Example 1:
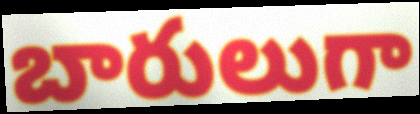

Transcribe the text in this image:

బారులుగా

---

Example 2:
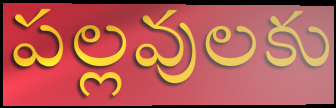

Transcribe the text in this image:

పల్లవులకు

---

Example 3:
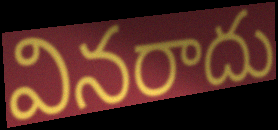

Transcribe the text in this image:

వినరాదు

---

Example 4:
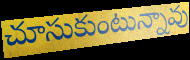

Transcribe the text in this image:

చూసుకుంటున్నావు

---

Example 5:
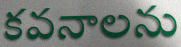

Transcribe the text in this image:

కవనాలను